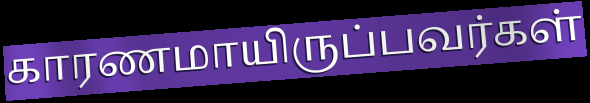
காரணமாயிருப்பவர்கள்